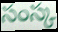
సంస్క